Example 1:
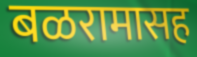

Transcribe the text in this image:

बळरामासह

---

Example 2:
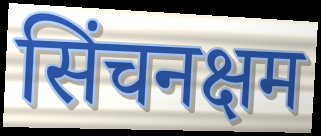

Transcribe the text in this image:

सिंचनक्षम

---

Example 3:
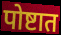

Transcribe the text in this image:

पोष्टात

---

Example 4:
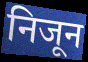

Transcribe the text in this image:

निजून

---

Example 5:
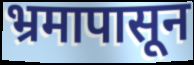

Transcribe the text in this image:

भ्रमापासून